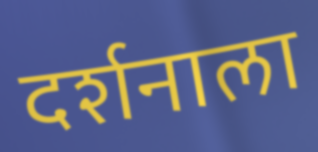
दर्शनाला